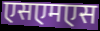
एसएमएस